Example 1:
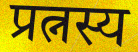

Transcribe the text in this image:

प्रत्नस्य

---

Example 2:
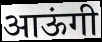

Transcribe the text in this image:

आऊंगी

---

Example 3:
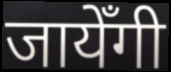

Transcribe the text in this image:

जायेँगी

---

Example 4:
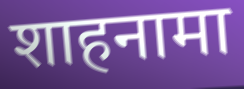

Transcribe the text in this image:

शाहनामा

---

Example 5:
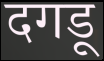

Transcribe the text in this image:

दगडू